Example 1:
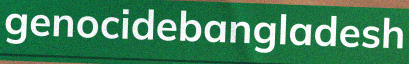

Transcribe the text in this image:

genocidebangladesh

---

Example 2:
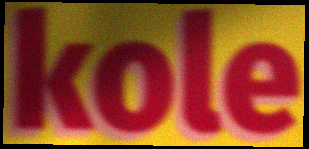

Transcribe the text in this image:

kole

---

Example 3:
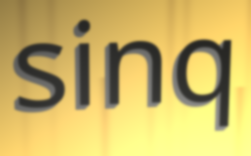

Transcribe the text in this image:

sinq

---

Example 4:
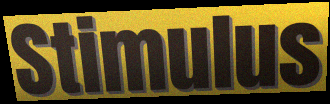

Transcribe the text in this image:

Stimulus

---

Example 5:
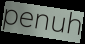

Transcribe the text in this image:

penuh